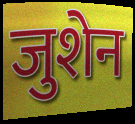
जुशेन